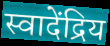
स्वादेंद्रिय